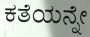
ಕತೆಯನ್ನೇ